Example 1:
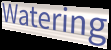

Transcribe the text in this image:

Watering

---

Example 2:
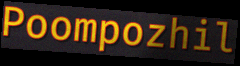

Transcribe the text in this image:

Poompozhil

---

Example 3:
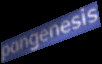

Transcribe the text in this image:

pangenesis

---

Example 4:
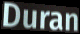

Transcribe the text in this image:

Duran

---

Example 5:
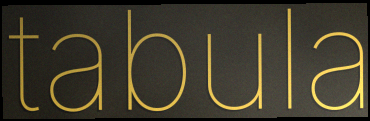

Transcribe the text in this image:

tabula